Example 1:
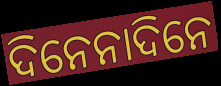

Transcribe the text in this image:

ଦିନେନାଦିନେ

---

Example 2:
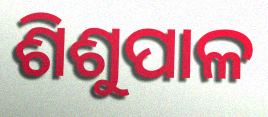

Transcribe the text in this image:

ଶିଶୁପାଳ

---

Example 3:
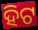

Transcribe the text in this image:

ହିଟ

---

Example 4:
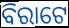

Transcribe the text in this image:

ବିରାଟେ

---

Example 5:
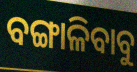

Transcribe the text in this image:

ବଙ୍ଗାଳିବାବୁ